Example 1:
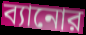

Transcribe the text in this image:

ব্যানোর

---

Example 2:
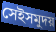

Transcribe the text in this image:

সেইসমুদয়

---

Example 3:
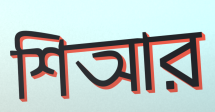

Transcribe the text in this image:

শিআর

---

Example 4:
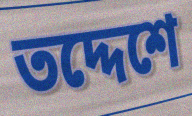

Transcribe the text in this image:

তদ্দেশে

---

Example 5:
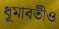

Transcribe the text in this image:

ধূমাবতীও